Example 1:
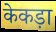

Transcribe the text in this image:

केकड़ा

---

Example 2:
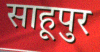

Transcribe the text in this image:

साहूपुर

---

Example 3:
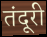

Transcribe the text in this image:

तंदूरी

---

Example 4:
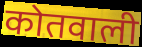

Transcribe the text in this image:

कोतवाली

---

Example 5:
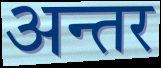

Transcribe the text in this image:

अन्तर